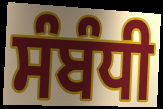
ਸੰਬੰਧੀ